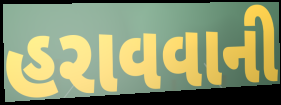
હરાવવાની